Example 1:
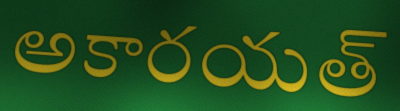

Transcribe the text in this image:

అకారయత్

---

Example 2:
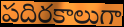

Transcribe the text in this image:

పదిరకాలుగా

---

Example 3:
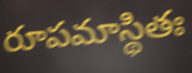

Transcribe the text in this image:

రూపమాస్థితః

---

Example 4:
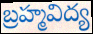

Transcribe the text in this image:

బ్రహ్మవిద్య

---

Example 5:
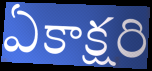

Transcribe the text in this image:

ఏకాక్షరి